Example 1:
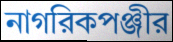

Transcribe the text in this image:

নাগরিকপঞ্জীর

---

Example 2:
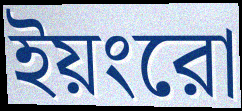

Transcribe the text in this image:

ইয়ংরো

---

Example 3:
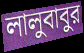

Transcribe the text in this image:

লালুবাবুর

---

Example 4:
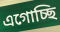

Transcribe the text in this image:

এগোচ্ছি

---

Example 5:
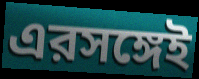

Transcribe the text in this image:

এরসঙ্গেই